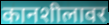
कानशीलावर